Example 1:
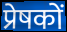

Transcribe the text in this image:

प्रेषकों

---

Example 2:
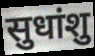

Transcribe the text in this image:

सुधांशु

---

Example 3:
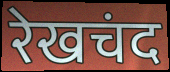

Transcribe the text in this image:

रेखचंद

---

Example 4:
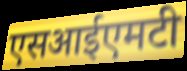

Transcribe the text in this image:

एसआईएमटी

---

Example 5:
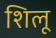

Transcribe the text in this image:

शिलू